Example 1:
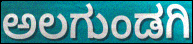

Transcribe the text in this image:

ಅಲಗುಂಡಗಿ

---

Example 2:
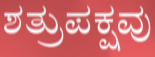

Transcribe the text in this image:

ಶತ್ರುಪಕ್ಷವು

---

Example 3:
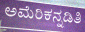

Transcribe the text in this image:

ಅಮೆರಿಕನ್ನಡಿತಿ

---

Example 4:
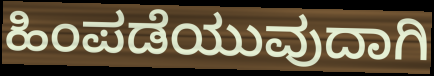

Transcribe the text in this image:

ಹಿಂಪಡೆಯುವುದಾಗಿ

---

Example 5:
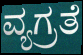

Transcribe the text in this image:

ವ್ಯಗ್ರತೆ